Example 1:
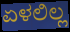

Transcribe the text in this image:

ಏಳಲಿಲ್ಲ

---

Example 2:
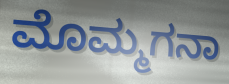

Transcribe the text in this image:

ಮೊಮ್ಮಗನಾ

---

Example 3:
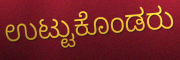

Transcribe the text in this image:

ಉಟ್ಟುಕೊಂಡರು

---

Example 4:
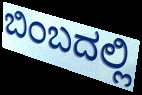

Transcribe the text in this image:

ಬಿಂಬದಲ್ಲಿ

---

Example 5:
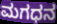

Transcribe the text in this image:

ಮಗಧನ